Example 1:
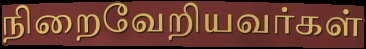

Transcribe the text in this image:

நிறைவேறியவர்கள்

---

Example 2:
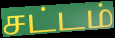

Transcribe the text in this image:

சட்டம்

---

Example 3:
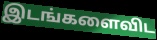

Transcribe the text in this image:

இடங்களைவிட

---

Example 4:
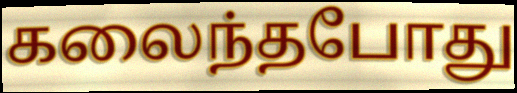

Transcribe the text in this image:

கலைந்தபோது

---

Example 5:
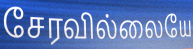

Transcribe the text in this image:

சேரவில்லையே